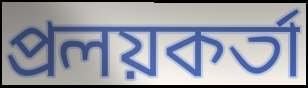
প্রলয়কর্তা